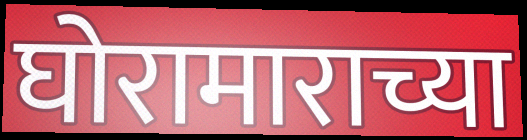
घोरामाराच्या